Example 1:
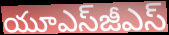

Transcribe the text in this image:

యూఎస్‌జీఎస్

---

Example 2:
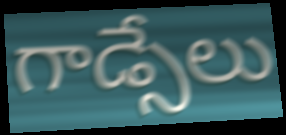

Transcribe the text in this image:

గాడ్సేలు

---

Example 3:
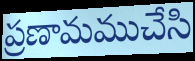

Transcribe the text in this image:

ప్రణామముచేసి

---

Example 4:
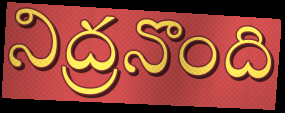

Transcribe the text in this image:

నిద్రనొంది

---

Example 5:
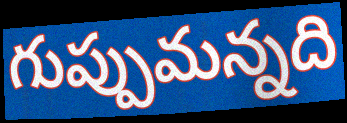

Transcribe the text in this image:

గుప్పుమన్నది